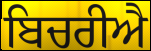
ਬਿਚਰੀਐ